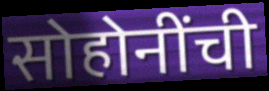
सोहोनींची